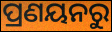
ପ୍ରଣୟନରୁ